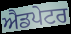
ਐਡਪੇਟਰ